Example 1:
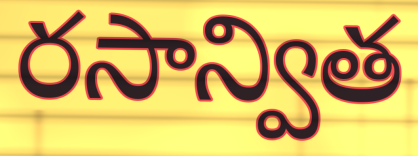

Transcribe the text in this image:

రసాన్విత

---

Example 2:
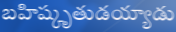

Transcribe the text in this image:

బహిష్కృతుడయ్యాడు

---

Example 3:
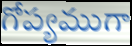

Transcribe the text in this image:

గోప్యముగా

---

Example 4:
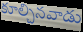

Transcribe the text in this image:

కూల్చినవాడు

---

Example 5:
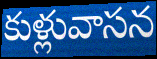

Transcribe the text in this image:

కుళ్లువాసన